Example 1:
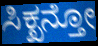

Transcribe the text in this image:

ಸಿಕ್ಖನ್ತೋ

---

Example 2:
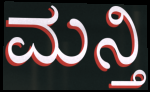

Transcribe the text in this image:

ಮನ್ತಿ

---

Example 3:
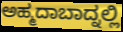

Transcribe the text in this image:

ಅಹ್ಮದಾಬಾದ್ನಲ್ಲಿ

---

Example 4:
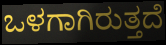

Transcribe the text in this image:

ಒಳಗಾಗಿರುತ್ತದೆ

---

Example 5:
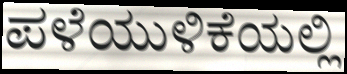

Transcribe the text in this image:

ಪಳೆಯುಳಿಕೆಯಲ್ಲಿ